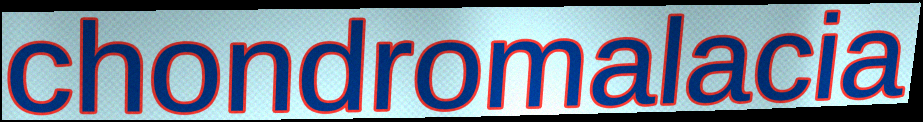
chondromalacia